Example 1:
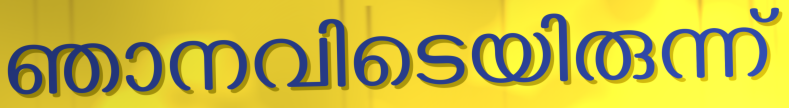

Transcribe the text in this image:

ഞാനവിടെയിരുന്ന്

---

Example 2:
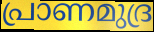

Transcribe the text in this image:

പ്രാണമുദ്ര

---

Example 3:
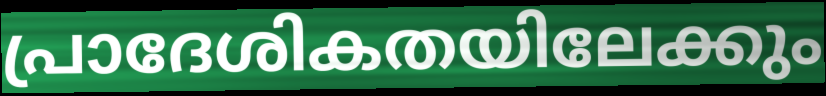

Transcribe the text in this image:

പ്രാദേശികതയിലേക്കും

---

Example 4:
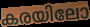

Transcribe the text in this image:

കരയിലോ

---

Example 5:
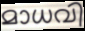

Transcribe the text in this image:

മാധവി